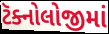
ટૅક્નોલોજીમાં